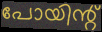
പോയിന്റ്